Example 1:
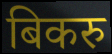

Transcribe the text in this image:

बिकरु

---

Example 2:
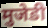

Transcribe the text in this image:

मुजेडी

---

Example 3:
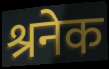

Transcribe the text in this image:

श्रनेक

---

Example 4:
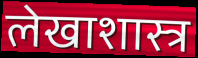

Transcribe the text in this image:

लेखाशास्त्र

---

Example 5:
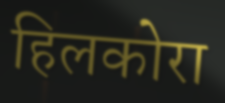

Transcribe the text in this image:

हिलकोरा